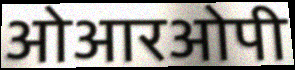
ओआरओपी